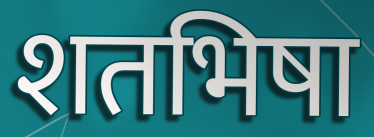
शतभिषा